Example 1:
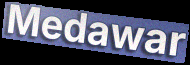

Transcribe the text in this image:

Medawar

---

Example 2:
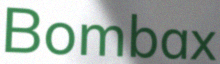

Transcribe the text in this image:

Bombax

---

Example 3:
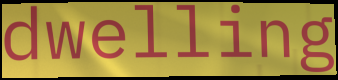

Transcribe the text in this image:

dwelling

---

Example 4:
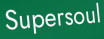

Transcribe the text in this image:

Supersoul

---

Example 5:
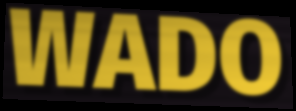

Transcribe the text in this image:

WADO